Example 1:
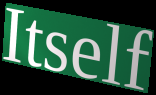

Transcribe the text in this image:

Itself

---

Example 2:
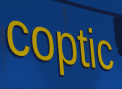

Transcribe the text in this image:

coptic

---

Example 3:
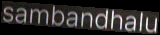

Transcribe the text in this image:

sambandhalu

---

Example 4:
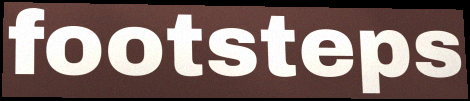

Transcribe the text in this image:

footsteps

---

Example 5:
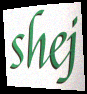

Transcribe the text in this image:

shej